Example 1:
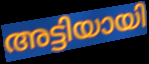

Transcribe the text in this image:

അട്ടിയായി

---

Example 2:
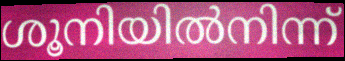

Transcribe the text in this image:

ശൂനിയിൽനിന്ന്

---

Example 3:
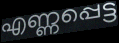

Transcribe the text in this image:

എണ്ണപ്പെട്ട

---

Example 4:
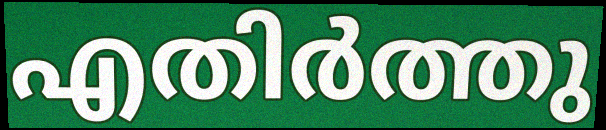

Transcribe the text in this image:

എതിർത്തു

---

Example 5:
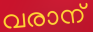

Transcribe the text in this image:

വരാന്